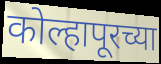
कोल्हापूरच्या